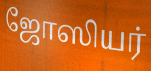
ஜோஸியர்